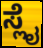
ಸ್ಲೈ